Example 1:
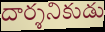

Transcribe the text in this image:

దార్శనికుడు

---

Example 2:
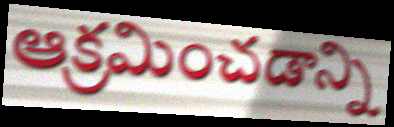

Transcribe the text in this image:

ఆక్రమించడాన్ని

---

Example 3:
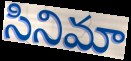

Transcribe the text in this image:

సినిమా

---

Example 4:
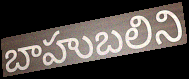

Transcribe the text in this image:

బాహుబలిని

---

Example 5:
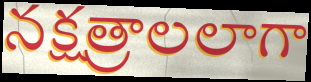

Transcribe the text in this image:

నక్షత్రాలలాగా